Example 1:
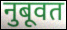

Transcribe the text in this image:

नुबूवत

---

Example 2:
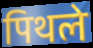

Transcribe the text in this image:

पिथले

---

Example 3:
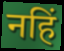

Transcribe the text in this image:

नहिं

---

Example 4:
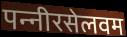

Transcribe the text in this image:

पन्नीरसेलवम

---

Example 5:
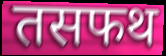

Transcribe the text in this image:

तसफथ